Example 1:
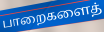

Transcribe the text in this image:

பாறைகளைத்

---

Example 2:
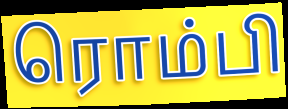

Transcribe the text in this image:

ரொம்பி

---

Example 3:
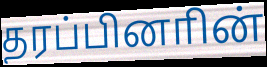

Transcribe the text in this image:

தரப்பினரின்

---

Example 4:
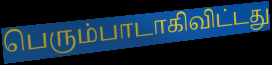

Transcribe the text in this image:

பெரும்பாடாகிவிட்டது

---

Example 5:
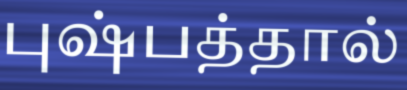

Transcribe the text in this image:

புஷ்பத்தால்